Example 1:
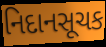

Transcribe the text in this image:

નિદાનસૂચક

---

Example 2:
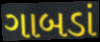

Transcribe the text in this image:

ગાબડાં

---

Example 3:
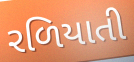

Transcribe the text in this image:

રળિયાતી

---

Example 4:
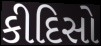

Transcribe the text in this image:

કીદિસો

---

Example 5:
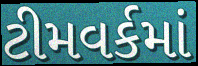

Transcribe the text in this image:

ટીમવર્કમાં